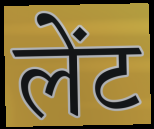
लेंट